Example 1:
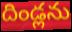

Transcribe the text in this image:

దిండ్లను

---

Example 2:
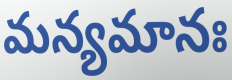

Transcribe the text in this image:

మన్యమానః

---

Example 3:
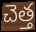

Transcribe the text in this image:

చెత్త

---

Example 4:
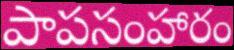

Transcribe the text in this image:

పాపసంహారం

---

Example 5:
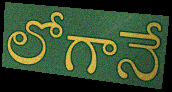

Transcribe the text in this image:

లోగానే